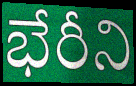
భేరీని